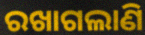
ରଖାଗଲାଣି